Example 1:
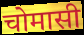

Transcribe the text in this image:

चोमासी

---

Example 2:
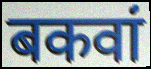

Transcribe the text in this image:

बकवां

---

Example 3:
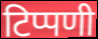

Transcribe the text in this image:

टिप्‍पणी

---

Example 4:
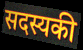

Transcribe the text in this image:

सदस्यकी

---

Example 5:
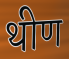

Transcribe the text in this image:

थीण